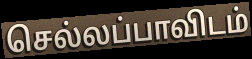
செல்லப்பாவிடம்